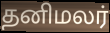
தனிமலர்